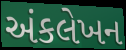
અંકલેખન